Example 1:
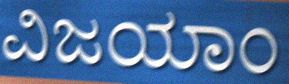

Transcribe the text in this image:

ವಿಜಯಾಂ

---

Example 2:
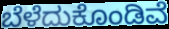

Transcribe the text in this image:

ಬೆಳೆದುಕೊಂಡಿವೆ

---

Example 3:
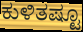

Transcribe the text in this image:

ಕುಳಿತಷ್ಟೂ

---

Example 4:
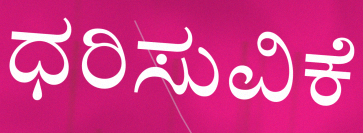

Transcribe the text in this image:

ಧರಿಸುವಿಕೆ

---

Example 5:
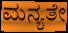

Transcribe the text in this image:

ಮನ್ಯತೇ